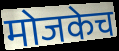
मोजकेच